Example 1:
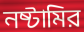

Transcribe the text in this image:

নষ্টামির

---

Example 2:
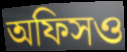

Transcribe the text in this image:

অফিসও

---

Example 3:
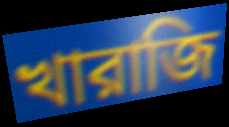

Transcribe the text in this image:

খারাজি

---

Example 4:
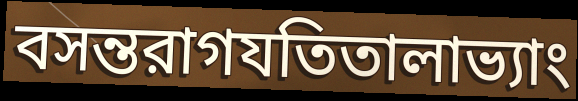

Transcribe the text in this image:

বসন্তরাগযতিতালাভ্যাং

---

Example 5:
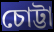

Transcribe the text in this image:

চোট্টা